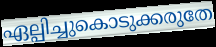
ഏല്പിച്ചുകൊടുക്കരുതേ